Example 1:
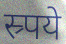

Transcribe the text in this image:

स्र्पये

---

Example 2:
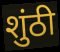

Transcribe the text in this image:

शुंठी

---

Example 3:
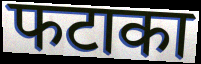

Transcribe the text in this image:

फटाका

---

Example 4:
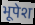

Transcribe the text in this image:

भूपेश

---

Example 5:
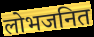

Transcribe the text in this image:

लोभजनित